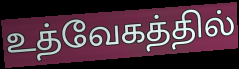
உத்வேகத்தில்